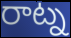
రాట్న